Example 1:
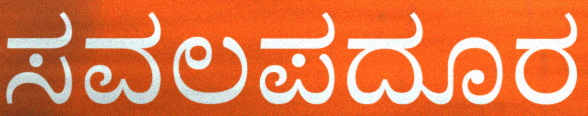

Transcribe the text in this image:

ಸವಲಪದೂರ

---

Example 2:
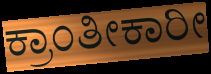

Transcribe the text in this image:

ಕ್ರಾಂತೀಕಾರೀ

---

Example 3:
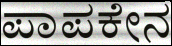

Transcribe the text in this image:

ಪಾಪಕೇನ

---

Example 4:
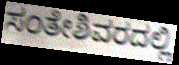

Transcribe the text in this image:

ಸಂತೇಶಿವರದಲ್ಲಿ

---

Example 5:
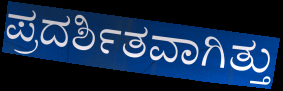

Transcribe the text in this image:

ಪ್ರದರ್ಶಿತವಾಗಿತ್ತು